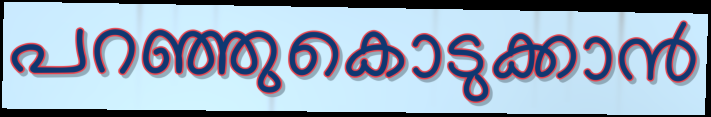
പറഞ്ഞുകൊടുക്കാൻ